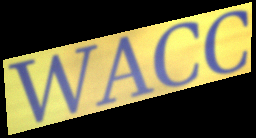
WACC